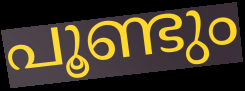
പൂണ്ടും